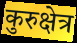
कुरुक्षेत्र